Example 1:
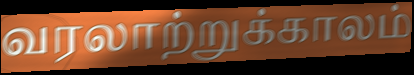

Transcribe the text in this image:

வரலாற்றுக்காலம்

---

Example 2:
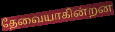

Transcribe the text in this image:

தேவையாகின்றன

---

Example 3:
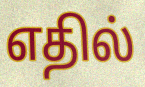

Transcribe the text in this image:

எதில்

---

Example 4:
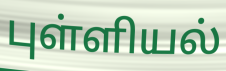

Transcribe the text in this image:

புள்ளியல்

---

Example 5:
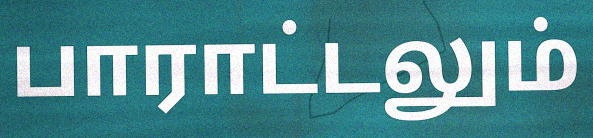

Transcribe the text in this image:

பாராட்டலும்